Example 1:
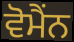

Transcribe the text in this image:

ਵੋਮੈਂਨ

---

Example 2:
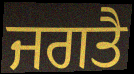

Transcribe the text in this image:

ਜਗਤੈ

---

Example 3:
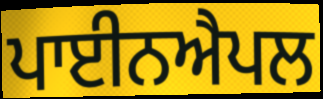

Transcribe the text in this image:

ਪਾਈਨਐਪਲ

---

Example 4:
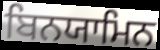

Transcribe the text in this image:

ਬਿਨਯਾਮਿਨ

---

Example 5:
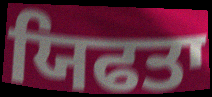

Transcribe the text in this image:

ਯਿਫਤਾ